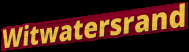
Witwatersrand